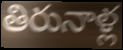
తిరునాళ్ల